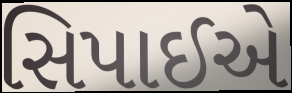
સિપાઈએ